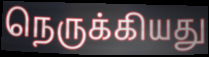
நெருக்கியது